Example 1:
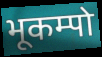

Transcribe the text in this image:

भूकम्पो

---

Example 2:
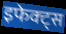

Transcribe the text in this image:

इफेक्‍ट्स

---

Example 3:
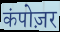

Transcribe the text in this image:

कंपोज़र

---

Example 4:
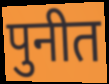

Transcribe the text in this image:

पुनीत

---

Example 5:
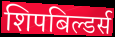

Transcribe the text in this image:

शिपबिल्डर्स